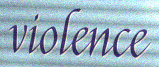
violence